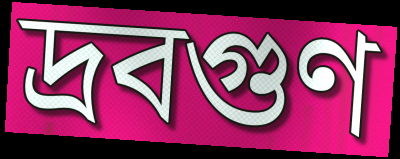
দ্রবগুণ